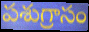
పశుగ్రాసం